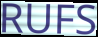
RUFS